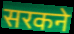
सरकने